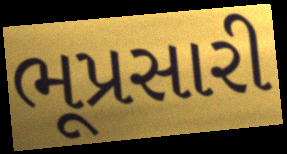
ભૂપ્રસારી